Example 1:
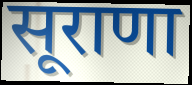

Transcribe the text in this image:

सूराणा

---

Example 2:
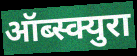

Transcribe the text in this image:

ऑब्स्क्युरा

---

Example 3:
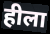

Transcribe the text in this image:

हीला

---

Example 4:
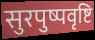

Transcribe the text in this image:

सुरपुष्पवृष्टि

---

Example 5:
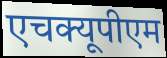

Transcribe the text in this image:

एचक्यूपीएम